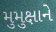
મુમુક્ષાને